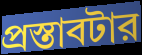
প্রস্তাবটার